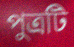
পুত্রটি